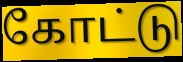
கோட்டு